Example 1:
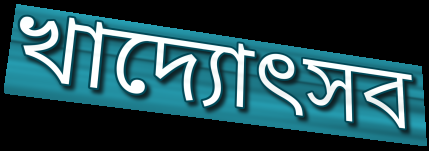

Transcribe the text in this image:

খাদ্যোৎসব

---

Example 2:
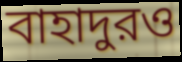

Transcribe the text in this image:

বাহাদুরও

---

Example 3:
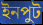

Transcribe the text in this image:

ইনপুট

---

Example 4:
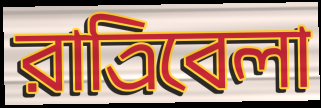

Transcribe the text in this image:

রাত্রিবেলা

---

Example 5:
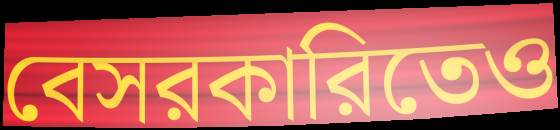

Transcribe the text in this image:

বেসরকারিতেও